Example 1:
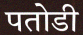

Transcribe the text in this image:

पतोडी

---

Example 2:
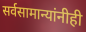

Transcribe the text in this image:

सर्वसामान्यांनीही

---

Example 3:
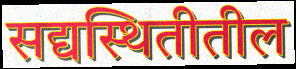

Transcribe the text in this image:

सद्यस्थितीतील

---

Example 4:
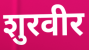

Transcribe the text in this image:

शुरवीर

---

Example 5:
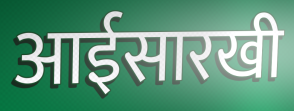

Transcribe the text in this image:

आईसारखी